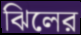
ঝিলের